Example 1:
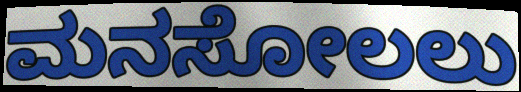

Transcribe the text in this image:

ಮನಸೋಲಲು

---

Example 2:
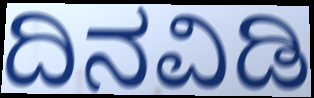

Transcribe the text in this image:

ದಿನವಿಡಿ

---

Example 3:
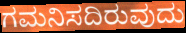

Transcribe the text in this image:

ಗಮನಿಸದಿರುವುದು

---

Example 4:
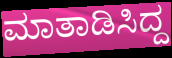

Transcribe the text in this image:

ಮಾತಾಡಿಸಿದ್ದ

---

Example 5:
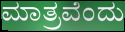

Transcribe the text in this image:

ಮಾತ್ರವೆಂದು